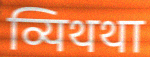
व्यिथथा